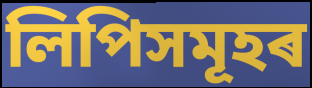
লিপিসমূহৰ